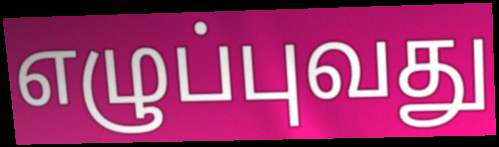
எழுப்புவது